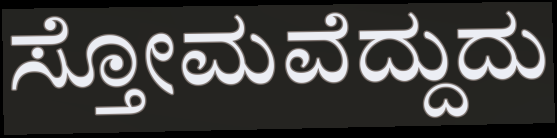
ಸ್ತೋಮವೆದ್ದುದು